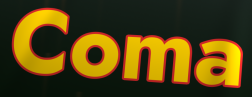
Coma